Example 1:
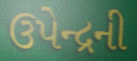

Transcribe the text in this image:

ઉપેન્દ્રની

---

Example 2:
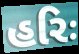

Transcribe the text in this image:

હરિઃ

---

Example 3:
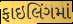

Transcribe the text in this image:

ફાઇલિંગમાં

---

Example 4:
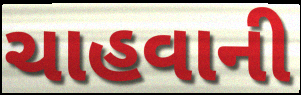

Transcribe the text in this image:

ચાહવાની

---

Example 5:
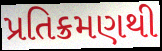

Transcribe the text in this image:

પ્રતિક્રમણથી